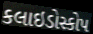
કલાઇડોસ્કોપ